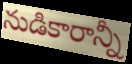
నుడికారాన్నీ